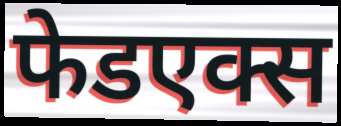
फेडएक्स